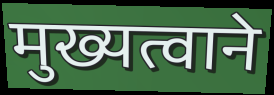
मुख्यत्वाने